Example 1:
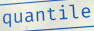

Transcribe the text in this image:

quantile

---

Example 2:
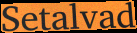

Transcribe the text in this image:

Setalvad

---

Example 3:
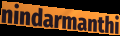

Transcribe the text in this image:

nindarmanthi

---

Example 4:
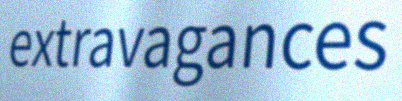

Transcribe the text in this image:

extravagances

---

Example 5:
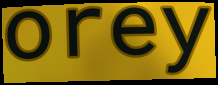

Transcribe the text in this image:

orey